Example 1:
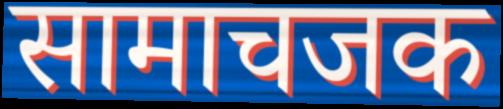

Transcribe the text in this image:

सामाचजक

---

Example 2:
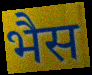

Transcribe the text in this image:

भैस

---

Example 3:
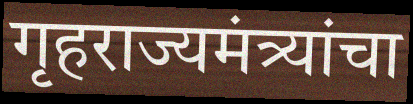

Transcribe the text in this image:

गृहराज्यमंत्र्यांचा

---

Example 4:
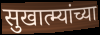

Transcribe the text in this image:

सुखात्म्यांच्या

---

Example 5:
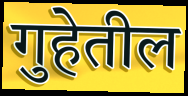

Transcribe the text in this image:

गुहेतील